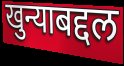
खुन्याबद्दल